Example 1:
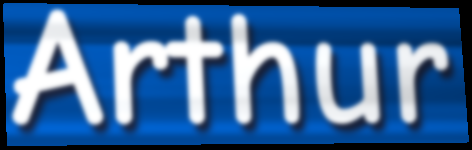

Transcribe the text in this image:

Arthur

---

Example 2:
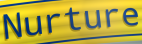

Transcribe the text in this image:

Nurture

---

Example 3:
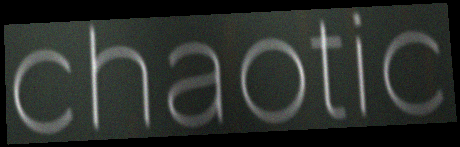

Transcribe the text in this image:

chaotic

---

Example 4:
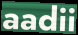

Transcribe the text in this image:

aadii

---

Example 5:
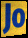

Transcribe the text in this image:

Jo